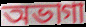
অভাগা